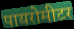
पायरोमीटर